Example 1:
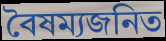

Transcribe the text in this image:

বৈষম্যজনিত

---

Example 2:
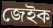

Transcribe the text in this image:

জেইক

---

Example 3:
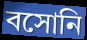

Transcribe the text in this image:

বসোনি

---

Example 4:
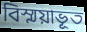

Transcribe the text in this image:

বিস্ময়াভূত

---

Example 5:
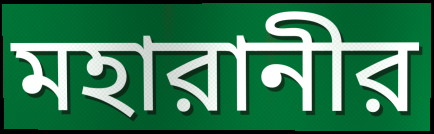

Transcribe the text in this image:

মহারানীর